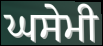
ਘਸੇਮੀ